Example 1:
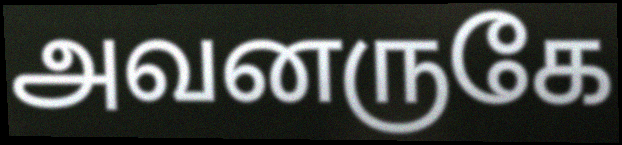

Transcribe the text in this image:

அவனருகே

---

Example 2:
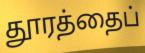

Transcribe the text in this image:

தூரத்தைப்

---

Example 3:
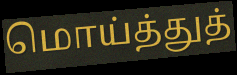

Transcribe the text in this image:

மொய்த்துத்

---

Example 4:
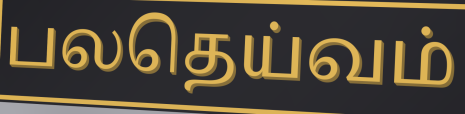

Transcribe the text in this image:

பலதெய்வம்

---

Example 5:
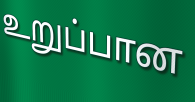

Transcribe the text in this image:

உறுப்பான